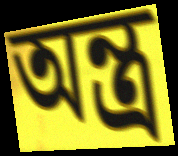
অন্ত্ৰ